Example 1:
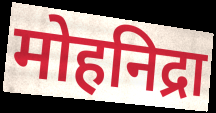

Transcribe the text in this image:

मोहनिद्रा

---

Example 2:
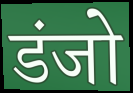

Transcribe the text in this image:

डंजो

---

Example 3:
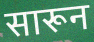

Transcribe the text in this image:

सारून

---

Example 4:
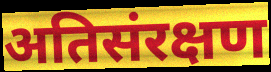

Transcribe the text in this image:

अतिसंरक्षण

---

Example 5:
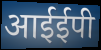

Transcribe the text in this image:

आईईपी